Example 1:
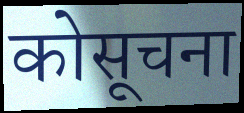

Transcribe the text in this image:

कोसूचना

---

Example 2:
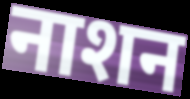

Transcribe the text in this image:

नाशन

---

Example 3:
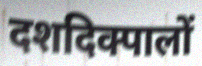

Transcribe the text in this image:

दशदिक्पालों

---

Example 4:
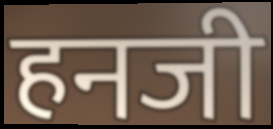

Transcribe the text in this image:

हनजी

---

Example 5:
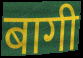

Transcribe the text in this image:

बागी